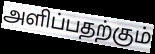
அளிப்பதற்கும்